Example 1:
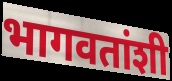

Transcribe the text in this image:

भागवतांशी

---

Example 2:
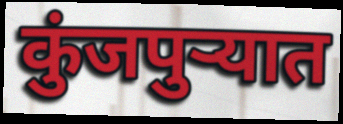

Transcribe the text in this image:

कुंजपुऱ्यात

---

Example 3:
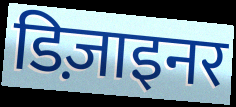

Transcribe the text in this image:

डिज़ाइनर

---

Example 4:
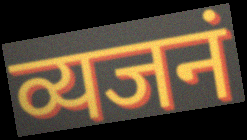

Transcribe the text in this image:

व्यजनं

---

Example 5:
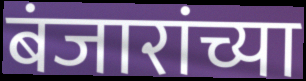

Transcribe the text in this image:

बंजारांच्या